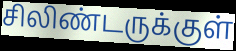
சிலிண்டருக்குள்